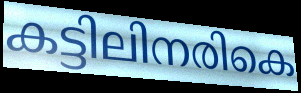
കട്ടിലിനരികെ